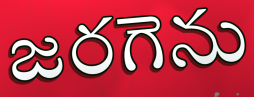
జరగెను